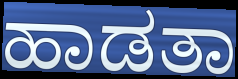
ಹಾಡತಾ